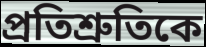
প্রতিশ্রুতিকে